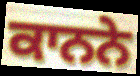
ਕਾਨਨੇ